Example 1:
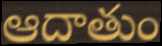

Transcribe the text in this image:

ఆదాతుం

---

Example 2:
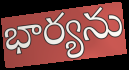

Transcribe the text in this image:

భార్యను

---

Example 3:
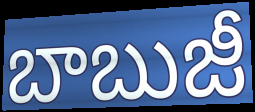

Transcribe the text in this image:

బాబుజీ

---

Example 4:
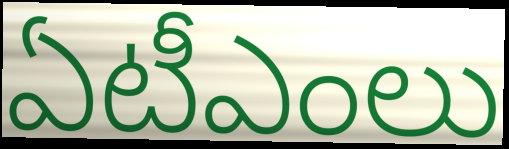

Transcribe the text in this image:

ఏటీఎంలు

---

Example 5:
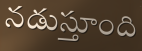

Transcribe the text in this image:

నడుస్తూంది